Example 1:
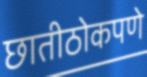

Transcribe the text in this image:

छातीठोकपणे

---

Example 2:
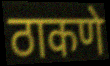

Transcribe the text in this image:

ठाकणे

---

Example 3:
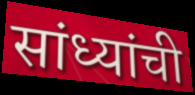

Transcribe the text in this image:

सांध्यांची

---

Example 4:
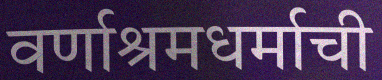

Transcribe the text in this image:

वर्णाश्रमधर्माची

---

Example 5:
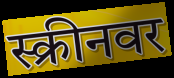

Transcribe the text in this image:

स्क्रीनवर